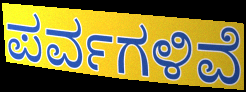
ಪರ್ವಗಳಿವೆ